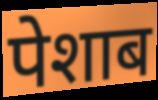
पेशाब